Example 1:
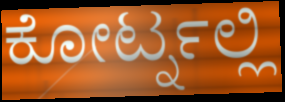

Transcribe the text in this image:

ಕೋರ್ಟ್ನಲ್ಲಿ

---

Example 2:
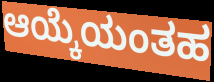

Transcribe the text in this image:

ಆಯ್ಕೆಯಂತಹ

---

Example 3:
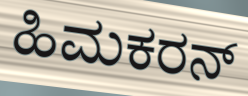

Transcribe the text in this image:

ಹಿಮಕರನ್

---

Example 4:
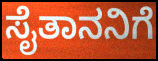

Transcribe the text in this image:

ಸೈತಾನನಿಗೆ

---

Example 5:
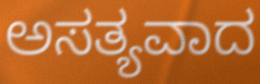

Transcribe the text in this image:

ಅಸತ್ಯವಾದ